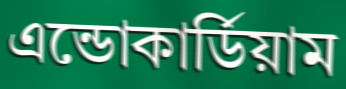
এন্ডোকার্ডিয়াম